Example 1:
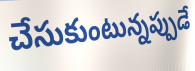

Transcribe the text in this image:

చేసుకుంటున్నప్పుడే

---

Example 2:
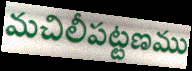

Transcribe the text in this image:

మచిలీపట్టణము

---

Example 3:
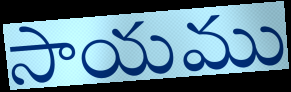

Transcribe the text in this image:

సాయము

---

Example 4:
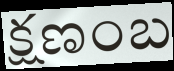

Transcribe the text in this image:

క్షణంబ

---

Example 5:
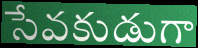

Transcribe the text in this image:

సేవకుడుగా